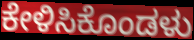
ಕೇಳಿಸಿಕೊಂಡಳು